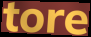
tore